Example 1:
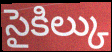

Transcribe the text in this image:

సైకిల్కు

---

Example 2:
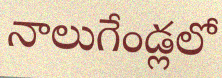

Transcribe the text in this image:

నాలుగేండ్లలో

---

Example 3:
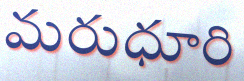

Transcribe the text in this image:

మరుధూరి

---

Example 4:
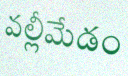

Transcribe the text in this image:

వల్లీమేడం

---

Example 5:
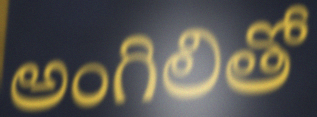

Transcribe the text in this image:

అంగిలితో